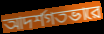
আদৰ্শগতভাৱে